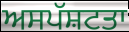
ਅਸਪੱਸ਼ਟਤਾ